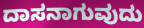
ದಾಸನಾಗುವುದು